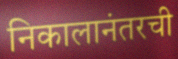
निकालानंतरची